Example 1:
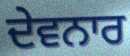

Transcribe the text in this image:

ਦੇਵਨਾਰ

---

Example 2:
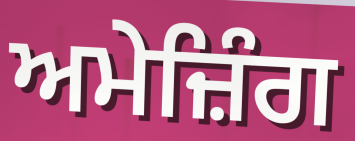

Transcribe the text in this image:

ਅਮੇਜ਼ਿੰਗ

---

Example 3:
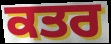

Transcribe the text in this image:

ਕਤਰ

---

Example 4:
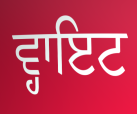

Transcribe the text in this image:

ਵ੍ਹਾਇਟ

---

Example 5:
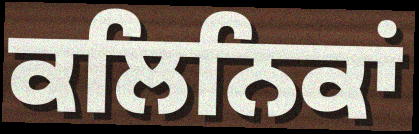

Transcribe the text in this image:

ਕਲਿਨਿਕਾਂ